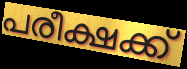
പരീക്ഷക്ക്